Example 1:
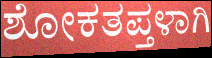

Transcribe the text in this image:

ಶೋಕತಪ್ತಳಾಗಿ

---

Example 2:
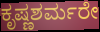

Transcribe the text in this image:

ಕೃಷ್ಣಶರ್ಮರೇ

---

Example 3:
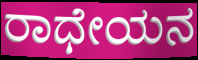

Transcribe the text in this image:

ರಾಧೇಯನ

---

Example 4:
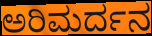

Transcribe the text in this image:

ಅರಿಮರ್ದನ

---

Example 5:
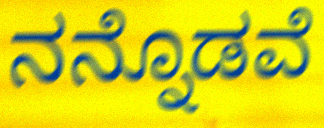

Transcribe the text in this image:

ನನ್ನೊಡವೆ